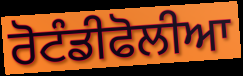
ਰੋਟੰਡੀਫੋਲੀਆ